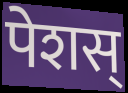
पेशस्